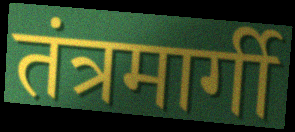
तंत्रमार्गी